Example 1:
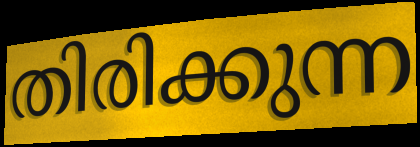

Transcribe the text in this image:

തിരിക്കുന്ന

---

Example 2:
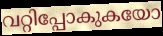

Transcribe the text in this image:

വറ്റിപ്പോകുകയോ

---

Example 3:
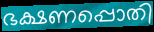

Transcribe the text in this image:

ഭക്ഷണപ്പൊതി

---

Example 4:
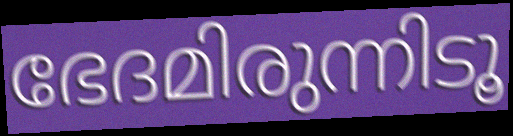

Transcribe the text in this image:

ഭേദമിരുന്നിടൂ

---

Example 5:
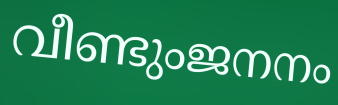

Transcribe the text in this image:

വീണ്ടുംജനനം